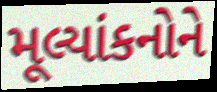
મૂલ્યાંકનોને